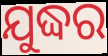
ଯୁଦ୍ଧର